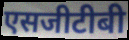
एसजीटीबी